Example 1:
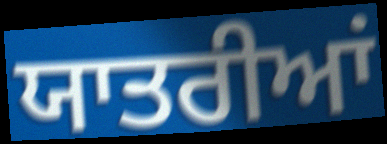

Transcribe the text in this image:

ਯਾਤਰੀਆਂ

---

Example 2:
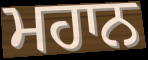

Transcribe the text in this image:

ਮਹਾਨ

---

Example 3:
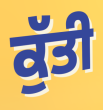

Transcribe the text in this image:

ਕੁੱਤੀ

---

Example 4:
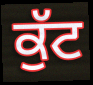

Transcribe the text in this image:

ਕੁੱਟ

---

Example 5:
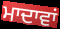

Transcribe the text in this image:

ਮਾਦਾਵਾਂ